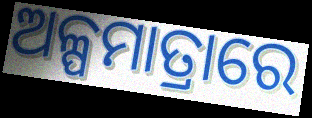
ଅଳ୍ପମାତ୍ରାରେ